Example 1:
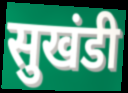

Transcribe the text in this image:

सुखंडी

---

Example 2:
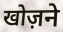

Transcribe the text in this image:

खोज़ने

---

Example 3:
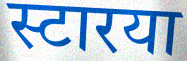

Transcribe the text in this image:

स्टारया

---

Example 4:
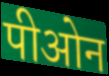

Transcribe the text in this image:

पीओन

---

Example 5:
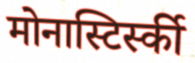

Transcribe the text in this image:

मोनास्टिर्स्की